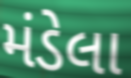
મંડેલા